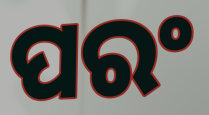
ପରଂ